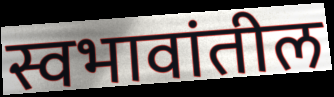
स्वभावांतील